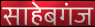
साहेबगंज